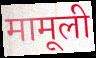
मामूली